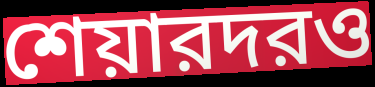
শেয়ারদরও